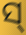
ସ୍